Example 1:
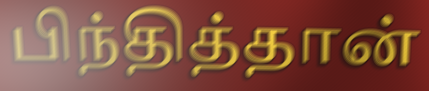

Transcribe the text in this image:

பிந்தித்தான்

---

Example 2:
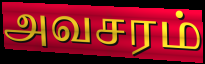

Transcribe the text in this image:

அவசரம்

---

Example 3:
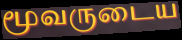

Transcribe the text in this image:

மூவருடைய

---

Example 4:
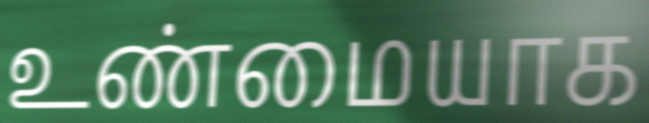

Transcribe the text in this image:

உண்மையாக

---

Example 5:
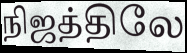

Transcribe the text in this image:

நிஜத்திலே